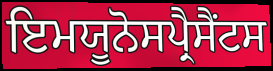
ਇਮਯੂਨੋਸਪ੍ਰੈਸੈਂਟਸ